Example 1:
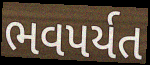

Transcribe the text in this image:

ભવપર્યત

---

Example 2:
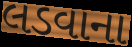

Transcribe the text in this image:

લડવાના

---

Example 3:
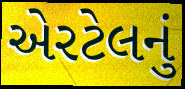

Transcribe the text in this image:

એરટેલનું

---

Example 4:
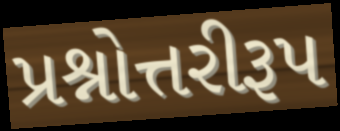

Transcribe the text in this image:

પ્રશ્નોત્તરીરૂપ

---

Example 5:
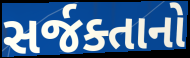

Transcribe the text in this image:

સર્જક્તાનો